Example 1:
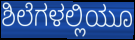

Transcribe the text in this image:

ಶಿಲೆಗಳಲ್ಲಿಯೂ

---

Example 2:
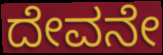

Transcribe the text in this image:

ದೇವನೇ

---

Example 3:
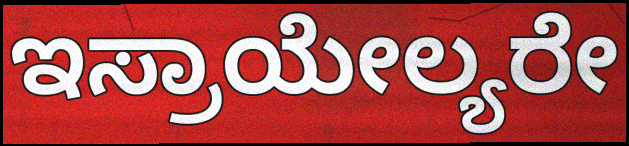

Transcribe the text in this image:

ಇಸ್ರಾಯೇಲ್ಯರೇ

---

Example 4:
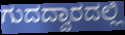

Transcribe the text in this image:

ಗುದದ್ವಾರದಲ್ಲಿ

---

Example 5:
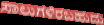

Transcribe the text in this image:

ಸಾಲುಗಳಿರಬಹುದು